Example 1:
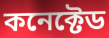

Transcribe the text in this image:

কনেক্টেড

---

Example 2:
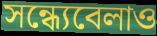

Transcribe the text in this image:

সন্ধ্যেবেলাও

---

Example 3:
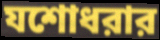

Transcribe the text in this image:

যশোধরার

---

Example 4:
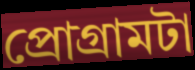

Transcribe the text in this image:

প্রোগ্রামটা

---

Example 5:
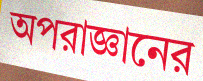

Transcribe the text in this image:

অপরাজ্ঞানের